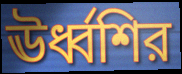
ঊর্ধ্বশির